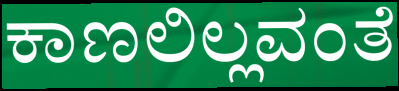
ಕಾಣಲಿಲ್ಲವಂತೆ